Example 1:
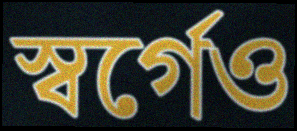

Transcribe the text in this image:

স্বর্গেও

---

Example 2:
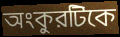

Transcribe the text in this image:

অংকুরটিকে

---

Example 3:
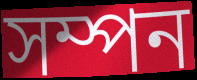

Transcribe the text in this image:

সম্পন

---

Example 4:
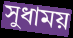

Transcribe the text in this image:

সুধাময়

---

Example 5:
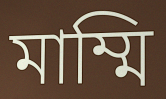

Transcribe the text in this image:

মাম্মি